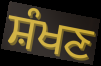
ਸ਼ੰਖਣ